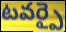
టవర్పై